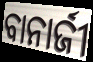
ବାନାର୍ଜୀ